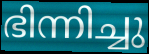
ഭിന്നിച്ചു